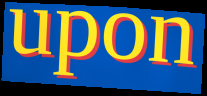
upon